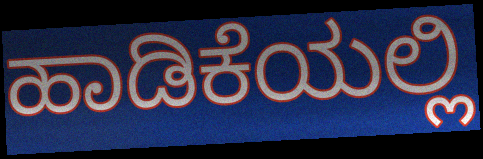
ಹಾಡಿಕೆಯಲ್ಲಿ